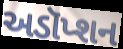
અડૉપ્શન